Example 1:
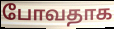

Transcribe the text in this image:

போவதாக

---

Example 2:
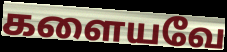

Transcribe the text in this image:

களையவே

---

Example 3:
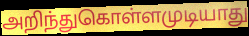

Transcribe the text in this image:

அறிந்துகொள்ளமுடியாது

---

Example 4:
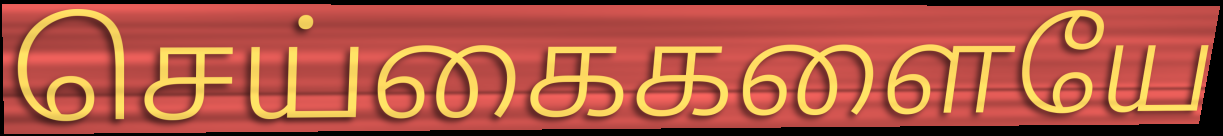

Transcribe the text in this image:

செய்கைகளையே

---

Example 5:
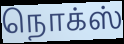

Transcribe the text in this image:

நொக்ஸ்